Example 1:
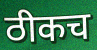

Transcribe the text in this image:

ठीकच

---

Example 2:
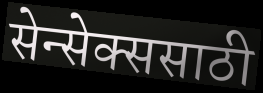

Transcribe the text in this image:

सेन्सेक्ससाठी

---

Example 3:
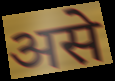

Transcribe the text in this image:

असे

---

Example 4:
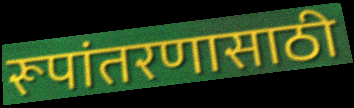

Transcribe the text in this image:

रूपांतरणासाठी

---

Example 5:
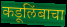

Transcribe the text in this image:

कडूलिंबाचा